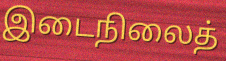
இடைநிலைத்